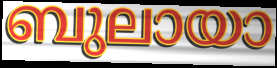
ബുലായാ